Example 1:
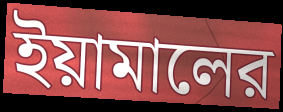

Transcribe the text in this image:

ইয়ামালের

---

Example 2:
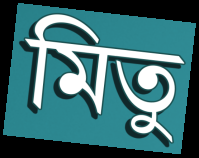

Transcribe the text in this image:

মিতু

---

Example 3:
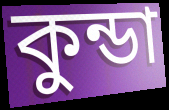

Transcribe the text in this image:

কুন্ডা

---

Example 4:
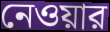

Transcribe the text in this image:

নেওয়ার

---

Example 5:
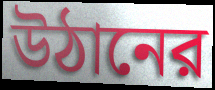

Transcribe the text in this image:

উঠানের